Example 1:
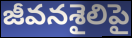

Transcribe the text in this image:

జీవనశైలిపై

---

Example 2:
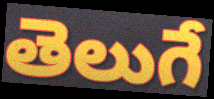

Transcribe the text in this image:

తెలుగే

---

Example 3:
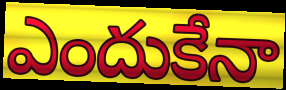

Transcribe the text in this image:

ఎందుకేనా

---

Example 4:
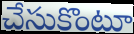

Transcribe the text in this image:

చేసుకొంటూ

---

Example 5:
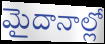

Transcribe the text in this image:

మైదానాల్లో